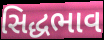
સિદ્ધભાવ